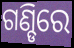
ଗଣ୍ଡିରେ